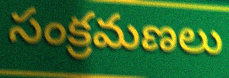
సంక్రమణలు